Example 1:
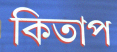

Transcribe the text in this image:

কিতাপ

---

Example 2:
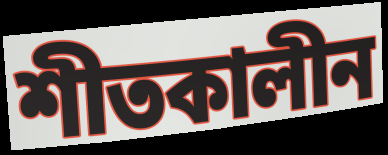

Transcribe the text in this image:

শীতকালীন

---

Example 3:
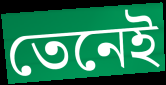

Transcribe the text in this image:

তেনেই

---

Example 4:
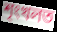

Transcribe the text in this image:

শৃংখলত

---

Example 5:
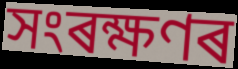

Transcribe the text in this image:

সংৰক্ষণৰ